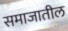
समाजातील